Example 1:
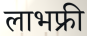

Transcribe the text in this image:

लाभफ्री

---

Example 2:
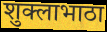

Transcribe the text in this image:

शुक्लाभाठा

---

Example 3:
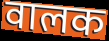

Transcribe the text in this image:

वालक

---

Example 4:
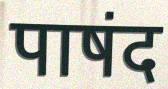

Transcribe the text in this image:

पाषंद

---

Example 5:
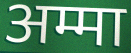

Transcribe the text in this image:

अम्‍मा